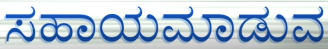
ಸಹಾಯಮಾಡುವ